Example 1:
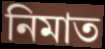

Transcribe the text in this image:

নিমাত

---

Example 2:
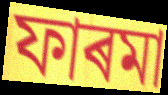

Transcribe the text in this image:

ফাৰমা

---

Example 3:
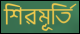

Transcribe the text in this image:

শিৱমূৰ্তি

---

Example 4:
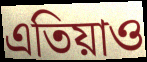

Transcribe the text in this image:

এতিয়াও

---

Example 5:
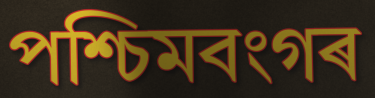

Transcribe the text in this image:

পশ্চিমবংগৰ